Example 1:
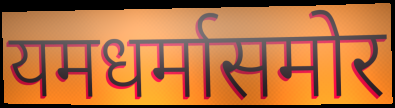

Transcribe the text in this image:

यमधर्मासमोर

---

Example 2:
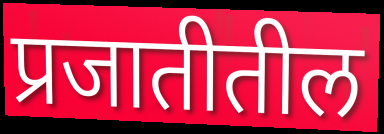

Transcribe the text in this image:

प्रजातीतील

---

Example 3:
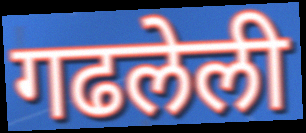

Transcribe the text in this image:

गढलेली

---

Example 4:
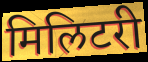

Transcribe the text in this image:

मिलिटरी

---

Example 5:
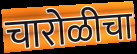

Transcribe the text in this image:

चारोळीचा